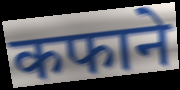
कफाने